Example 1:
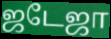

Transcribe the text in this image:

ஜடேஜா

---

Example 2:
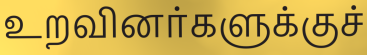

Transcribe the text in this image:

உறவினர்களுக்குச்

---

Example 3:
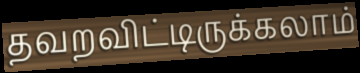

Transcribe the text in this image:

தவறவிட்டிருக்கலாம்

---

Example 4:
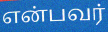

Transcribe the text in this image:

என்பவர்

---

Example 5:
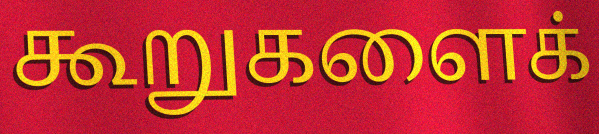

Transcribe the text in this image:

கூறுகளைக்